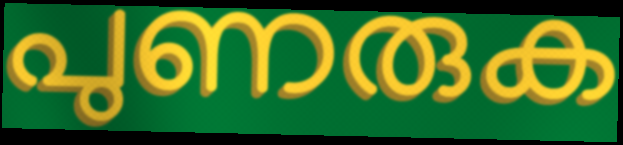
പുണരുക